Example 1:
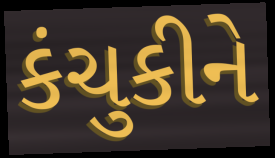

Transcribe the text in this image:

કંચુકીને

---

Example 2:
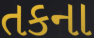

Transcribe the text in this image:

તકના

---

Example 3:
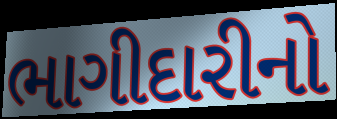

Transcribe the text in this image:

ભાગીદારીનો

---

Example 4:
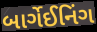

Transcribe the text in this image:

બાર્ગેઈનિંગ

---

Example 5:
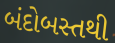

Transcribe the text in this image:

બંદોબસ્તથી